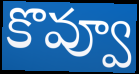
కొవ్వూ